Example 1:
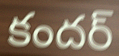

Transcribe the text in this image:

కందర్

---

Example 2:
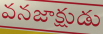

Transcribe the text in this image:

వనజాక్షుడు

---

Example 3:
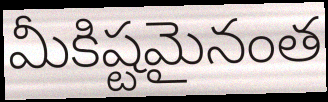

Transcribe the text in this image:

మీకిష్టమైనంత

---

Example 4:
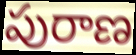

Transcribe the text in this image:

పురాణ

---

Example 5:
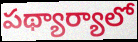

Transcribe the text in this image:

పథ్యార్యాలో